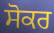
ਸੋਕਰ